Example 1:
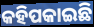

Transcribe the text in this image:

କହିପକାଇଛି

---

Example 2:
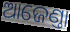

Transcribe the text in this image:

ଆଜେଣ୍ତା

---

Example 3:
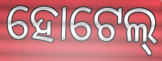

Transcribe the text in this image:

ହୋଟେଲ୍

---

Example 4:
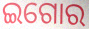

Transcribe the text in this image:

ଇଗୋର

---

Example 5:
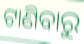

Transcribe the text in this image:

ଟାଣିବାରୁ